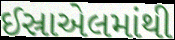
ઈસ્રાએલમાંથી